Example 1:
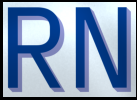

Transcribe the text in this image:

RN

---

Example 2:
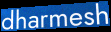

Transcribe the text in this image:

dharmesh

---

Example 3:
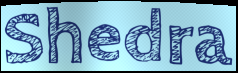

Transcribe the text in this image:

Shedra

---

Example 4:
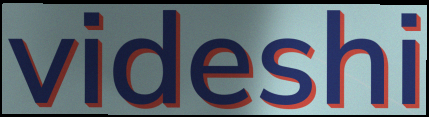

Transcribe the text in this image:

videshi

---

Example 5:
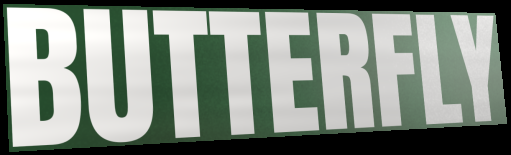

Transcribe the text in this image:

BUTTERFLY